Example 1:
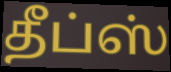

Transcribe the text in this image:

தீப்ஸ்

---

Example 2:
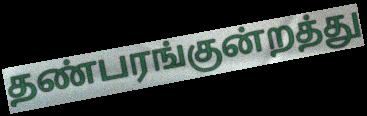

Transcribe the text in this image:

தண்பரங்குன்றத்து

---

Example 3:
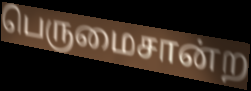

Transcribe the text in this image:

பெருமைசான்ற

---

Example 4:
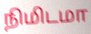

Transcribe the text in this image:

நிமிடமா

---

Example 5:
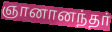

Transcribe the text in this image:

ஞானானந்தர்